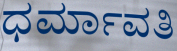
ಧರ್ಮಾವತಿ